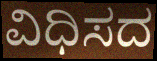
ವಿಧಿಸದ